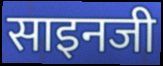
साइनजी